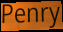
Penry